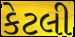
કેટલી